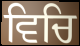
ਵਿਚਿ